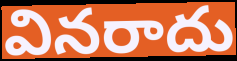
వినరాదు